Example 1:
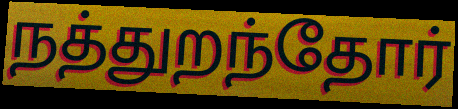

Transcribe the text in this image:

நத்துறந்தோர்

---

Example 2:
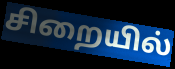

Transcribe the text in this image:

சிறையில்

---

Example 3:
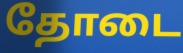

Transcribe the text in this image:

தோடை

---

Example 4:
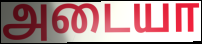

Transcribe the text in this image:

அடையா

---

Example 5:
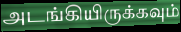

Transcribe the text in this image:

அடங்கியிருக்கவும்